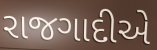
રાજગાદીએ